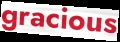
gracious